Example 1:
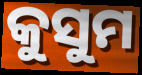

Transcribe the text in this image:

କୁସୁମ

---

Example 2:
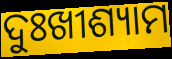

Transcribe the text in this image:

ଦୁଃଖୀଶ୍ୟାମ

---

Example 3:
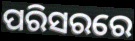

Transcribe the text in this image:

ପରିସରରେ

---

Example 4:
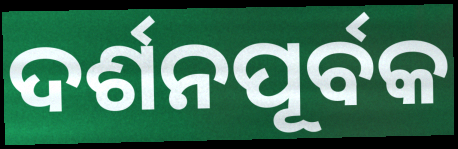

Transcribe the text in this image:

ଦର୍ଶନପୂର୍ବକ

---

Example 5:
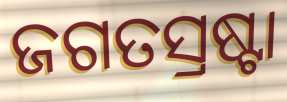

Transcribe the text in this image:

ଜଗତସ୍ରଷ୍ଟା